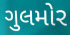
ગુલમોર